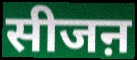
सीजऩ